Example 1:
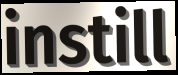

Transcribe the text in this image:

instill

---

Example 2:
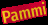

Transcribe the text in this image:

Pammi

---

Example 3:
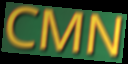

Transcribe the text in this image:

CMN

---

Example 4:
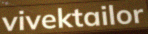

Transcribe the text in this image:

vivektailor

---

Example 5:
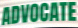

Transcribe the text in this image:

ADVOCATE